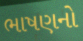
ભાષણનો